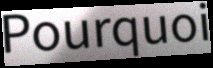
Pourquoi